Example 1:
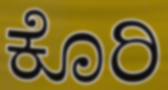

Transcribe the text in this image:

ಕೊರಿ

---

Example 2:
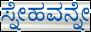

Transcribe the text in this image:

ಸ್ನೇಹವನ್ನೇ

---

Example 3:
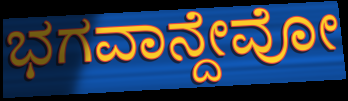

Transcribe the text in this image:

ಭಗವಾನ್ದೇವೋ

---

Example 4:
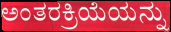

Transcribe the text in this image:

ಅಂತರಕ್ರಿಯೆಯನ್ನು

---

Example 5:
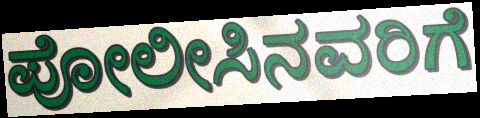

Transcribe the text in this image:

ಪೋಲೀಸಿನವರಿಗೆ